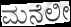
ಮನೆಲೀ